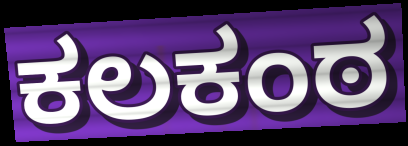
ಕಲಕಂಠ